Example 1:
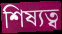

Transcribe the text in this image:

শিষ্যত্ব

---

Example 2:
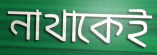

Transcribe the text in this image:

নাথাকেই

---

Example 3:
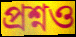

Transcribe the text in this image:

প্ৰশ্নও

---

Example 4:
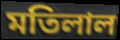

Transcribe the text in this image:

মতিলাল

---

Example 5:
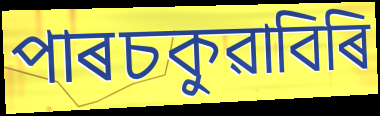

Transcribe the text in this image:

পাৰচকুৱাবিৰি